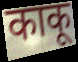
काकू